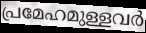
പ്രമേഹമുള്ളവർ